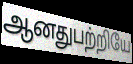
ஆனதுபற்றியே